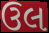
ઉલ